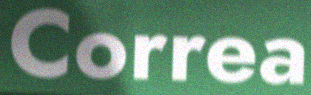
Correa